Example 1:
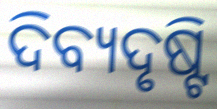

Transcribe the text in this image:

ଦିବ୍ୟଦୃଷ୍ଟି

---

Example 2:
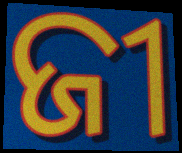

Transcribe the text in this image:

ଜୀ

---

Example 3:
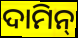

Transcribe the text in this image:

ଦାମିନ୍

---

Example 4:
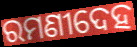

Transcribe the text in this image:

ରମଣୀଦେହ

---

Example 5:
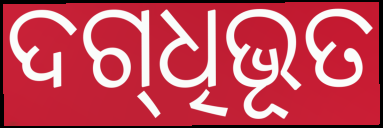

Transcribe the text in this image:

ଦଗ୍‍ଧିଭୂତ